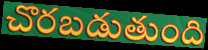
చొరబడుతుంది